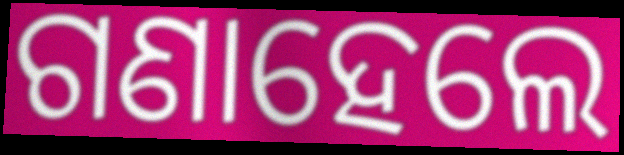
ଗଣାହେଲେ